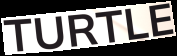
TURTLE